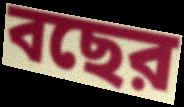
বছের